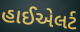
હાઈએલર્ટ